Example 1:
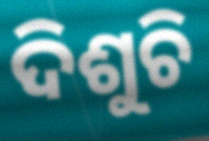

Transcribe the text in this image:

ଦିଶୁଚି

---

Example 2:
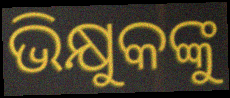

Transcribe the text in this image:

ଭିକ୍ଷୁକଙ୍କୁ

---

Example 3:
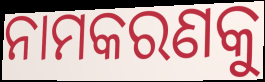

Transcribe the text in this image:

ନାମକରଣକୁ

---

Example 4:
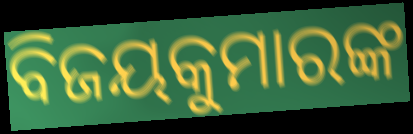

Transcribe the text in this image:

ବିଜୟକୁମାରଙ୍କ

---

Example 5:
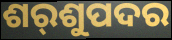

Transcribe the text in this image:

ଶର୍‌ଶୁପଦର